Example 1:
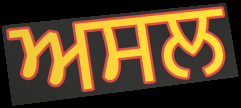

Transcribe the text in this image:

ਅਸਲ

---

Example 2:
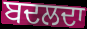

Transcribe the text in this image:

ਬਦਲਦਾ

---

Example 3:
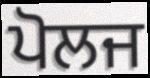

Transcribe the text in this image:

ਪੋਲਜ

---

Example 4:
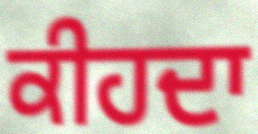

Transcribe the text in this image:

ਕੀਹਦਾ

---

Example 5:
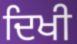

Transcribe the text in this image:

ਦਿਖੀ